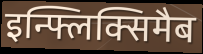
इन्फ्लिक्सिमैब